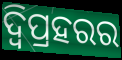
ଦ୍ୱିପ୍ରହରର